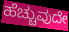
ಹೆಚ್ಚುವುದೇ